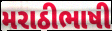
મરાઠીભાષી